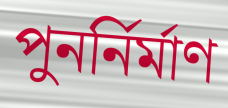
পুনৰ্নিৰ্মাণ